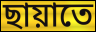
ছায়াতে